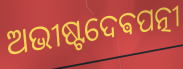
ଅଭୀଷ୍ଟଦେଵପତ୍ନୀ